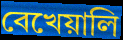
বেখেয়ালি